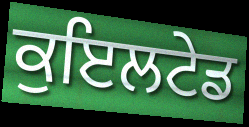
ਕੁਇਲਟੇਡ